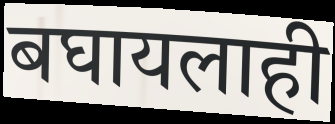
बघायलाही